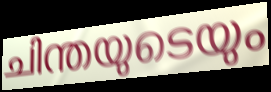
ചിന്തയുടെയും